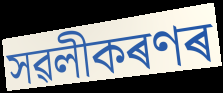
সৱলীকৰণৰ